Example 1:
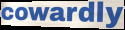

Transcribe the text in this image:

cowardly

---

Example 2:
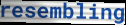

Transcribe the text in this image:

resembling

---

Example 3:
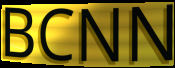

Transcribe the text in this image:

BCNN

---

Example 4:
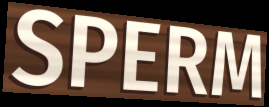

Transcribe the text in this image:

SPERM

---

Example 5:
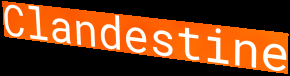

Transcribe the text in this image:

Clandestine